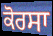
ਕੋਰਸਾ